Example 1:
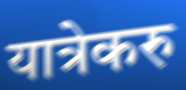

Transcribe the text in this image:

यात्रेकरु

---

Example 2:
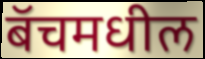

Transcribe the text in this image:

बॅचमधील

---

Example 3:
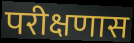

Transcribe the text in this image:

परीक्षणास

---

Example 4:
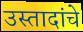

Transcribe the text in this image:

उस्तादांचे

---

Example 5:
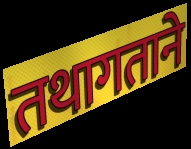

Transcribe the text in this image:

तथागताने